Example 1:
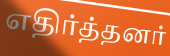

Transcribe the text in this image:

எதிர்த்தனர்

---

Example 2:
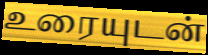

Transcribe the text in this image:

உரையுடன்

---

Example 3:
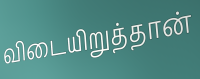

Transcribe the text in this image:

விடையிறுத்தான்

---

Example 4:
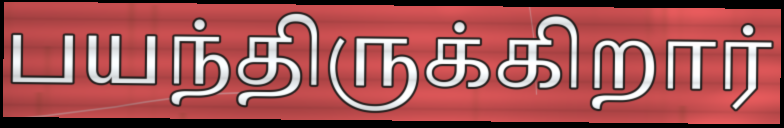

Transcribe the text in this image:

பயந்திருக்கிறார்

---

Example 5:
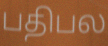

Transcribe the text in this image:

பதிபல